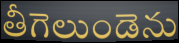
తీగెలుండెను